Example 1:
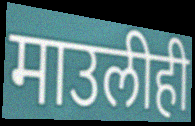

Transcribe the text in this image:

माउलीही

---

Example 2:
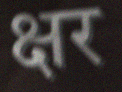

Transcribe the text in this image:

क्षर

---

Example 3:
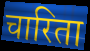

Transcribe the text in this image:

चारिता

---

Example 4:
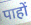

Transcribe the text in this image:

पाहों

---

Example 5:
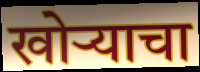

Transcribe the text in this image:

खोर्‍याचा